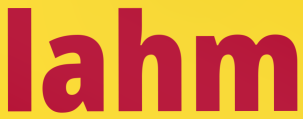
lahm